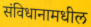
संविधानामधील